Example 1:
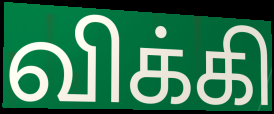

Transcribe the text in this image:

விக்கி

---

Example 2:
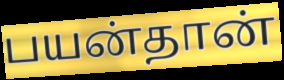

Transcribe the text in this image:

பயன்தான்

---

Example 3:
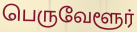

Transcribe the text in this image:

பெருவேளூர்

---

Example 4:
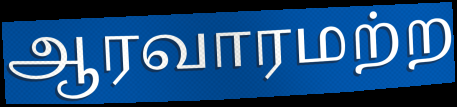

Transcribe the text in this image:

ஆரவாரமற்ற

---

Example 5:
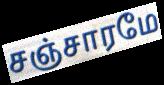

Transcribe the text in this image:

சஞ்சாரமே